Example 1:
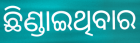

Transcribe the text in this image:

ଛିଣ୍ଡାଇଥିବାର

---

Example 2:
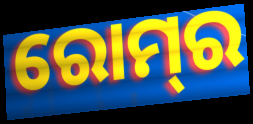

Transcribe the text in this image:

ରୋମ୍‍ର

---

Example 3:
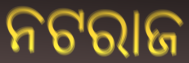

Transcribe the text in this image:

ନଟରାଜ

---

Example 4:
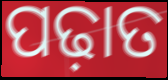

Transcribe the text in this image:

ପଢ଼ାତ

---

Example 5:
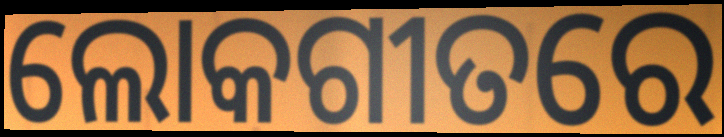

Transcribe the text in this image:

ଲୋକଗୀତରେ